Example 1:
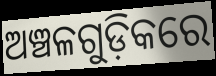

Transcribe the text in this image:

ଅଞ୍ଚଳଗୁଡ଼ିକରେ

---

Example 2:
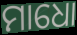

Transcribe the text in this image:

ମାଧୋ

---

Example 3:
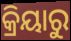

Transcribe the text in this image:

କ୍ରିୟାରୁ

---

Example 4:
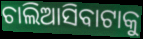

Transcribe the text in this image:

ଚାଲିଆସିବାଟାକୁ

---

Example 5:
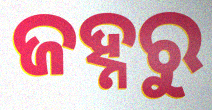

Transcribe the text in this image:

ଜହ୍ନରୁ